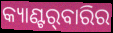
କ୍ୟାଣ୍ଟର୍‌ବାରିର